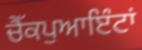
ਚੈੱਕਪੁਆਇੰਟਾਂ